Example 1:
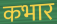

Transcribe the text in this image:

कभार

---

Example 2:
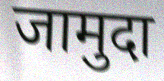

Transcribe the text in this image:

जामुदा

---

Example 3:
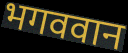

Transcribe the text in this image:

भगववान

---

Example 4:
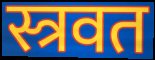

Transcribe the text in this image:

स्त्रवत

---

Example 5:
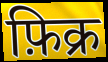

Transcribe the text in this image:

फ़िक्र